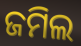
ଜମିଲ